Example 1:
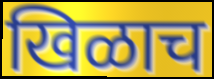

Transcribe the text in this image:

खिळाच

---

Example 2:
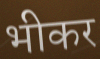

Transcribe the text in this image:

भीकर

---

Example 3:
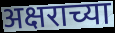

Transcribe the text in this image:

अक्षराच्या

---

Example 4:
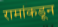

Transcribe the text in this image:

रामांकडून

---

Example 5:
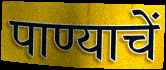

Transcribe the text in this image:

पाण्याचें